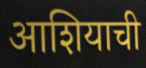
आशियाची